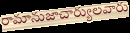
రామానుజాచార్యులవారు